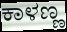
ಕಾಳಣ್ಣ